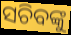
ସଚିବଙ୍କୁ